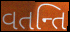
વતન્તિ